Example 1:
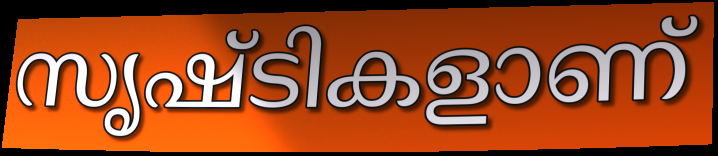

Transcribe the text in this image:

സൃഷ്ടികളാണ്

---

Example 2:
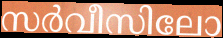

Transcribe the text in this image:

സർവീസിലോ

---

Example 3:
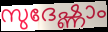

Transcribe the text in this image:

സുദേഷ്ണാം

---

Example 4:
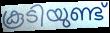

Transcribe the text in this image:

കൂടിയുണ്ട്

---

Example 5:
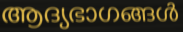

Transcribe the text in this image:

ആദ്യഭാഗങ്ങൾ